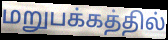
மறுபக்கத்தில்